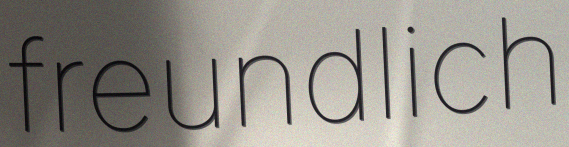
freundlich